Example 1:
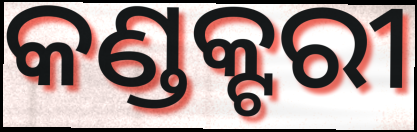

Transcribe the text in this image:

କଣ୍ଡକ୍ଟରୀ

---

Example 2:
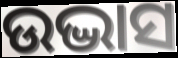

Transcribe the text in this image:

ଉଦ୍ଭାସ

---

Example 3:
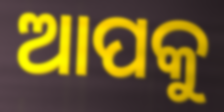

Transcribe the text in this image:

ଆପକୁ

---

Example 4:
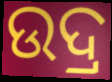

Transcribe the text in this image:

ଉଦ୍ର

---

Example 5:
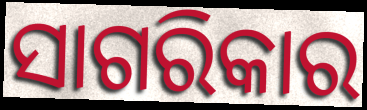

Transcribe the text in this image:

ସାଗରିକାର